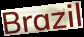
Brazil